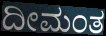
ದೀಮಂತ